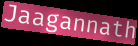
Jaagannath